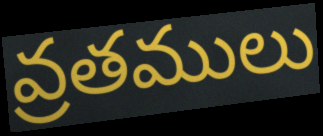
వ్రతములు